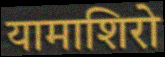
यामाशिरो